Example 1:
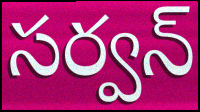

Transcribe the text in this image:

సర్వన్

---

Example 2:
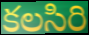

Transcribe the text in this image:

కలసిరి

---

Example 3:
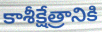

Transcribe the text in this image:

కాశీక్షేత్రానికి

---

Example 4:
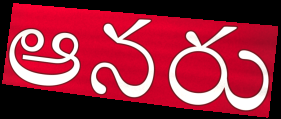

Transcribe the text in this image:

ఆనరు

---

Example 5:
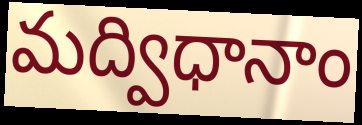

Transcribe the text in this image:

మద్విధానాం